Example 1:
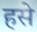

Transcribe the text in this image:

हसे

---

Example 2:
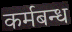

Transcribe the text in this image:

कर्मबन्ध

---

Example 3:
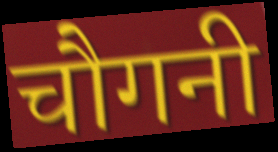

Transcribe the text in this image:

चौगनी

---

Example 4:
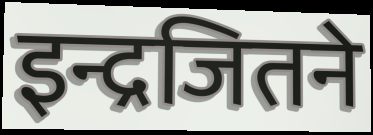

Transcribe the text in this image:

इन्द्रजितने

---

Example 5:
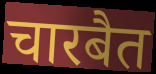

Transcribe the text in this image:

चारबैत